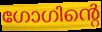
ഗോഗിന്റെ